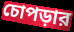
চোপড়ার